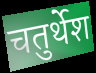
चतुर्थेश